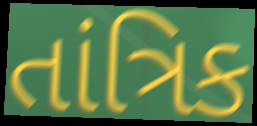
તાંત્રિક